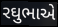
રઘુભાએ